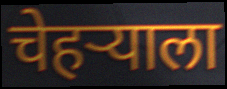
चेहऱ्याला